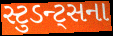
સ્ટુડન્ટ્સના